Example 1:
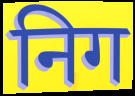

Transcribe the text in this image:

निग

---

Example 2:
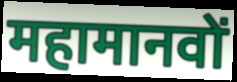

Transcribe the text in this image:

महामानवों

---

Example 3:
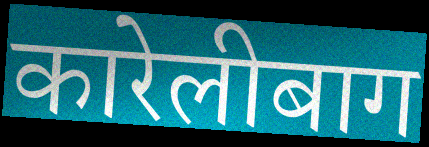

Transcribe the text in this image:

कारेलीबाग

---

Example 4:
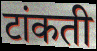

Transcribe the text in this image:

टांकती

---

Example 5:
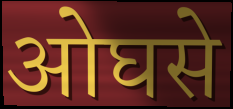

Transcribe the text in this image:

ओघसे